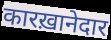
कारख़ानेदार